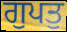
ਗੁਪਤੁ